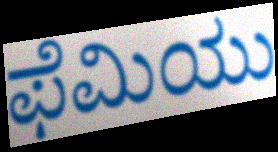
ಫೆಮಿಯು